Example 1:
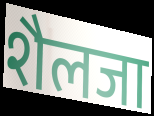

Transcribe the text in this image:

शैलजा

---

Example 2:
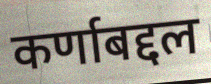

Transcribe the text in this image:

कर्णाबद्दल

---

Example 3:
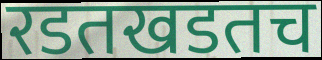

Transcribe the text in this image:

रडतखडतच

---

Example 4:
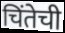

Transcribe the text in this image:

चिंतेची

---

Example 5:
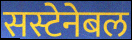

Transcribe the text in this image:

सस्टेनेबल